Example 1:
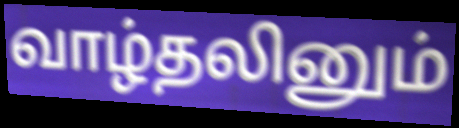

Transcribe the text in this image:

வாழ்தலினும்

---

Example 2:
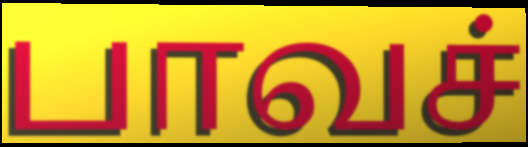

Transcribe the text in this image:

பாவச்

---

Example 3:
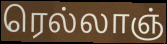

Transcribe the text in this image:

ரெல்லாஞ்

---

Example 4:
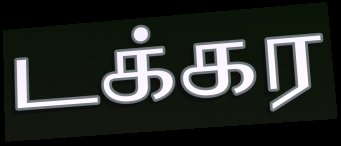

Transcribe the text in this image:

டக்கர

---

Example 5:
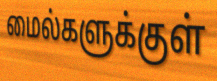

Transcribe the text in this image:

மைல்களுக்குள்